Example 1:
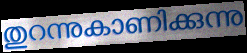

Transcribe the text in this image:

തുറന്നുകാണിക്കുന്നു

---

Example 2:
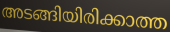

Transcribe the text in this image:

അടങ്ങിയിരിക്കാത്ത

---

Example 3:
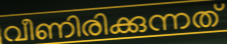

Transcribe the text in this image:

വീണിരിക്കുന്നത്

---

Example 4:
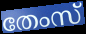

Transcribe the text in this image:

തേംസ്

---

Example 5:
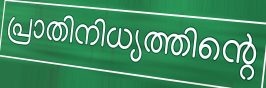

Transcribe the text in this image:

പ്രാതിനിധ്യത്തിന്റെ